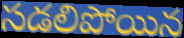
సడలిపోయిన